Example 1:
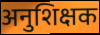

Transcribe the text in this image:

अनुशिक्षक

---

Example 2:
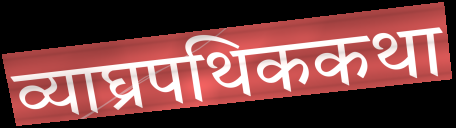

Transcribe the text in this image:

व्याघ्रपथिककथा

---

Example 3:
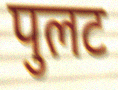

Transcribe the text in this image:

पुलट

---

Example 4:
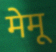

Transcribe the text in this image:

मेमू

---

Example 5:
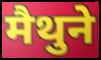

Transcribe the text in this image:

मैथुने